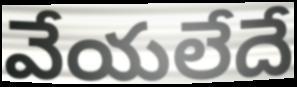
వేయలేదే